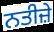
ਨਤੀਜ਼ੇ